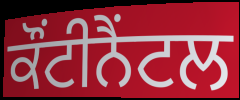
ਕੌਂਟੀਨੈਂਟਲ